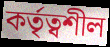
কৰ্তৃত্বশীল